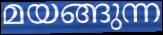
മയങ്ങുന്ന